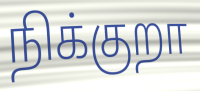
நிக்குறா